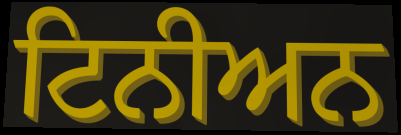
ਟਿਨੀਅਨ